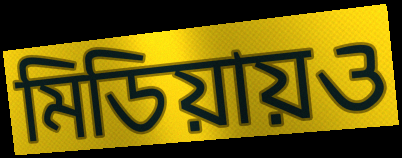
মিডিয়ায়ও